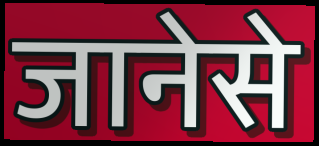
जानेसे